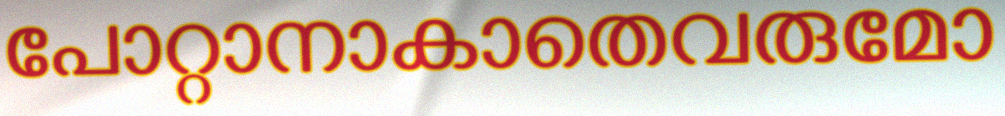
പോറ്റാനാകാതെവരുമോ